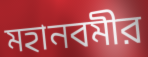
মহানবমীর